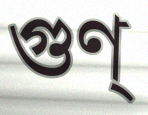
গুণ্